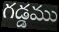
గడ్డము